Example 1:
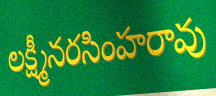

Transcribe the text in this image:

లక్ష్మీనరసింహరావు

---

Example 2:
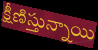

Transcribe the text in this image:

క్షీణిస్తున్నాయి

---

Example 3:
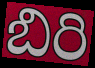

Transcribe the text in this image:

బిరి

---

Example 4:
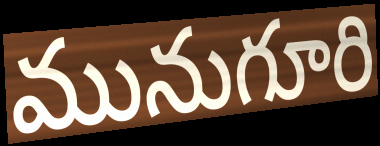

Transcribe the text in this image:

మునుగూరి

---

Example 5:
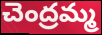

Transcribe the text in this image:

చెంద్రమ్మ